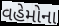
વહેમોના